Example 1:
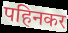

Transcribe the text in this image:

पहिनकर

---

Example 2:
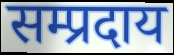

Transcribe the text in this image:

सम्प्रदाय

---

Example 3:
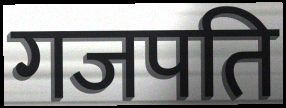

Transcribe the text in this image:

गजपति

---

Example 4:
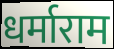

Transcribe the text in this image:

धर्माराम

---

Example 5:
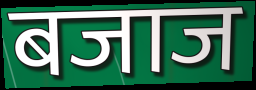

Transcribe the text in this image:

बजाज